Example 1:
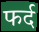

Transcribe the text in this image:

फर्द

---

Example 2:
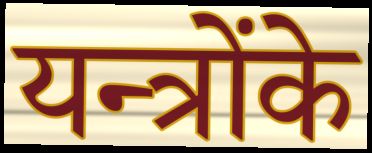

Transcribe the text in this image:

यन्त्रोंके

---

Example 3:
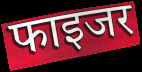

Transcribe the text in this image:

फाइजर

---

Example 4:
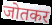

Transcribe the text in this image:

जोतकर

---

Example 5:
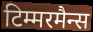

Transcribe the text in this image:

टिम्मरमैन्स